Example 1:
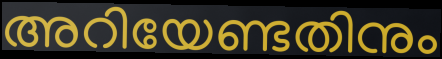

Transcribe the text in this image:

അറിയേണ്ടതിനും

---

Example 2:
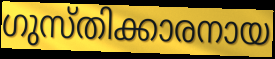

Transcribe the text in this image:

ഗുസ്തിക്കാരനായ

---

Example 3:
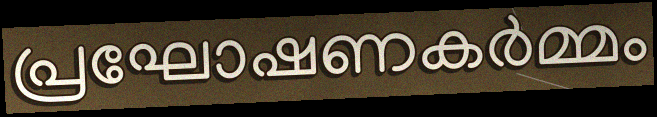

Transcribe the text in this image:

പ്രഘോഷണകർമ്മം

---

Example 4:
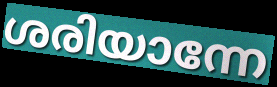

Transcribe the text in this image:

ശരിയാന്നേ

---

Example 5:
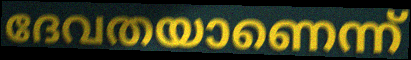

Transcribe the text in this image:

ദേവതയാണെന്ന്